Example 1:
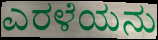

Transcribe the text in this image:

ಎರಳೆಯನು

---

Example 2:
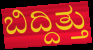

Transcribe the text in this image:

ಬಿದ್ದಿತ್ತು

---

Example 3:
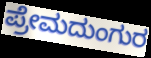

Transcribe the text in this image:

ಪ್ರೇಮದುಂಗುರ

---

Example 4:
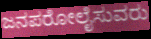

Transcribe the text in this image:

ಜನಪರೋಲೈಸುವರು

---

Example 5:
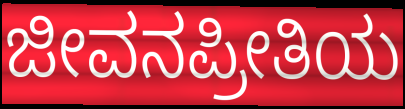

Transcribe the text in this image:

ಜೀವನಪ್ರೀತಿಯ